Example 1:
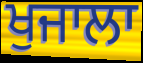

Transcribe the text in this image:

ਖੁਜਾਲਾ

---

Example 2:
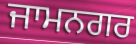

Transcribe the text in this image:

ਜਾਮਨਗਰ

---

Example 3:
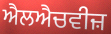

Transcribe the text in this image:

ਐਲਐਚਵੀਜ਼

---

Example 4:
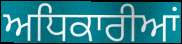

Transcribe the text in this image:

ਅਧਿਕਾਰੀਆਂ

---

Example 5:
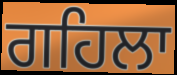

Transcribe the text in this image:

ਗਹਿਲਾ